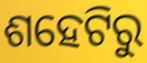
ଶହେଟିରୁ